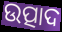
ଉତ୍ପାଦ